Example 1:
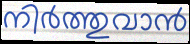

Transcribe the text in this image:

നിർത്തുവാൻ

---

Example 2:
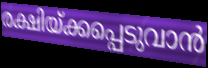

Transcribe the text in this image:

രക്ഷിയ്ക്കപ്പെടുവാൻ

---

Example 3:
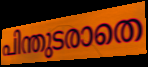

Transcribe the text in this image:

പിന്തുടരാതെ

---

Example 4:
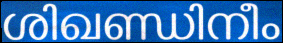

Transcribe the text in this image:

ശിഖണ്ഡിനീം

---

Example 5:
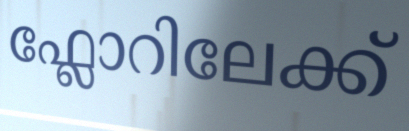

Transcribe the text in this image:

ഫ്ലോറിലേക്ക്